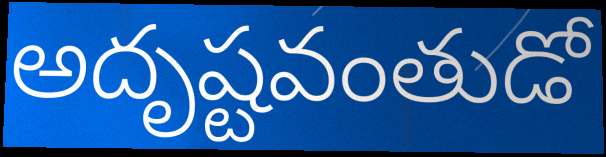
అదృష్టవంతుడో